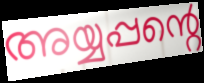
അയ്യപ്പന്റെ